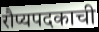
रौप्यपदकाची